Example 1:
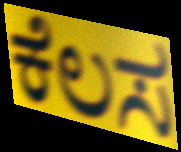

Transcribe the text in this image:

ಕೆಲಸ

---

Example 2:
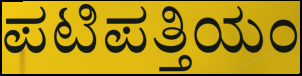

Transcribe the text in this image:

ಪಟಿಪತ್ತಿಯಂ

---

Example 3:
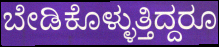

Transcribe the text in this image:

ಬೇಡಿಕೊಳ್ಳುತ್ತಿದ್ದರೂ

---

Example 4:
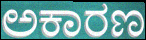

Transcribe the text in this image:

ಅಕಾರಣ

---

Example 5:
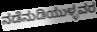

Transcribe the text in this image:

ನಡೆನುಡಿಯುಳ್ಳವರ